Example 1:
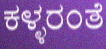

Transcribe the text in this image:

ಕಳ್ಳರಂತೆ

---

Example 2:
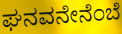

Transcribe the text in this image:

ಘನವನೇನೆಂಬೆ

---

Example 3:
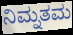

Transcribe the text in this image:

ನಿಮ್ನತಮ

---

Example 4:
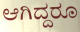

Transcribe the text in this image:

ಆಗಿದ್ದರೂ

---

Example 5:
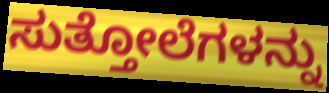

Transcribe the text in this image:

ಸುತ್ತೋಲೆಗಳನ್ನು